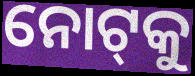
ନୋଟ୍‌କୁ